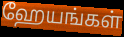
ஹேயங்கள்